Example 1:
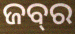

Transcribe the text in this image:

ଜବ୍‍ର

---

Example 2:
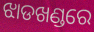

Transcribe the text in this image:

ଝାଡଖଣ୍ଡରେ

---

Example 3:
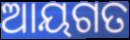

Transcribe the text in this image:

ଆୟଗତ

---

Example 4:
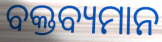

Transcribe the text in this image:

ବକ୍ତବ୍ୟମାନ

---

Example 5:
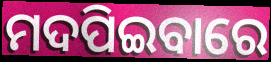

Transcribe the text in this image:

ମଦପିଇବାରେ